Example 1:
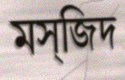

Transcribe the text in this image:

মস্জিদ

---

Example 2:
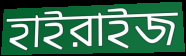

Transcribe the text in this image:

হাইরাইজ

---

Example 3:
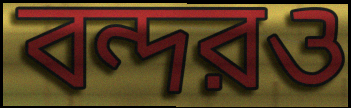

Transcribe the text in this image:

বন্দরও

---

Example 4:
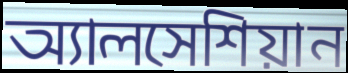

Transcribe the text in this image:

অ্যালসেশিয়ান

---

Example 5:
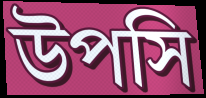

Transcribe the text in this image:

উপসি